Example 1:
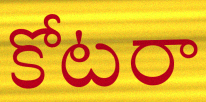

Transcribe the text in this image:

కోటరా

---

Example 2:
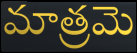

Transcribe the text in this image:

మాత్రమె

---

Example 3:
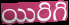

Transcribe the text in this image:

యిరిగి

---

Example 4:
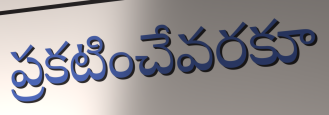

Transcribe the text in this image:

ప్రకటించేవరకూ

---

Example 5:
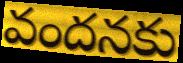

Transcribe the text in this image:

వందనకు